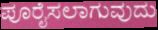
ಪೂರೈಸಲಾಗುವುದು